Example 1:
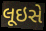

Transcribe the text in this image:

લૂઇસે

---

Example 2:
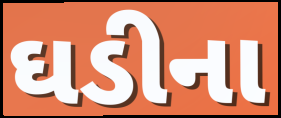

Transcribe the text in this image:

ઘડીના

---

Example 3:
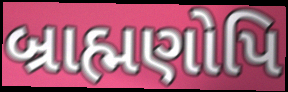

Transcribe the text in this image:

બ્રાહ્મણોપિ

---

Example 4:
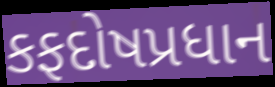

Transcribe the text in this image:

કફદોષપ્રધાન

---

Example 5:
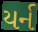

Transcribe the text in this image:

યર્ન